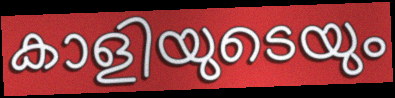
കാളിയുടെയും